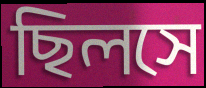
ছিলসে